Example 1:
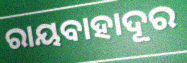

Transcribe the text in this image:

ରାୟବାହାଦୂର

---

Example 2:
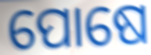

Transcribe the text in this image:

ପୋଷେ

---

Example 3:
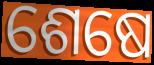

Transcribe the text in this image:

ଶେଷେ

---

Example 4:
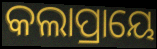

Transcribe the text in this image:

କଲାପ୍ରାୟେ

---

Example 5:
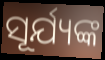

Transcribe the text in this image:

ସୂର୍ଯ୍ୟଙ୍କ